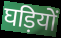
घड़ियों